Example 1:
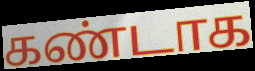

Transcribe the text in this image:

கண்டாக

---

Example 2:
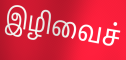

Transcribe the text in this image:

இழிவைச்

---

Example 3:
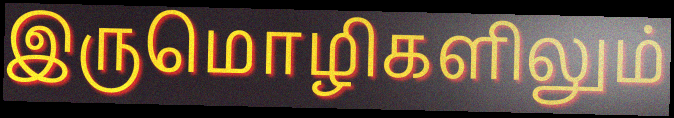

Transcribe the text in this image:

இருமொழிகளிலும்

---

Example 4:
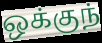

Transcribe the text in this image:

ஒக்குந்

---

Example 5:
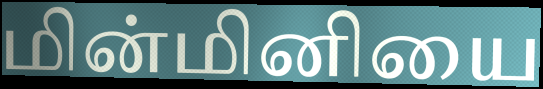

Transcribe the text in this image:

மின்மினியை